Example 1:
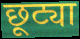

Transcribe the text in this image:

छूट्या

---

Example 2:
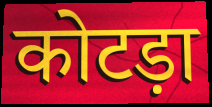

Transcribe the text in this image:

कोटड़ा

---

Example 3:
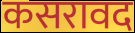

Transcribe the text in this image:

कसरावद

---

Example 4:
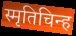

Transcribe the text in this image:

स्मृतिचिन्ह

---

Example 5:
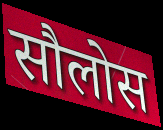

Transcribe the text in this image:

सौलोस